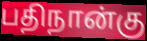
பதிநான்கு